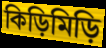
কিড়িমিড়ি